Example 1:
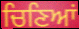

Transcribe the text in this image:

ਚਿਣਿਆਂ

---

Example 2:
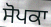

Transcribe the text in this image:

ਸੋਪਕਾ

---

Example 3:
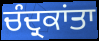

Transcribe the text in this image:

ਚੰਦ੍ਰਕਾਂਤਾ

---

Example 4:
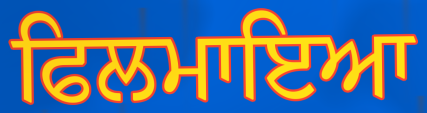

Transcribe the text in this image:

ਫਿਲਮਾਇਆ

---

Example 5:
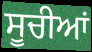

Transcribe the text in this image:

ਸੂਚੀਆਂ